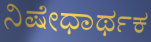
ನಿಷೇಧಾರ್ಥಕ